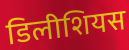
डिलीशियस